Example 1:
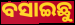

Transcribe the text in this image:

ବସାଇଛୁ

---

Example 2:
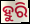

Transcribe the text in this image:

ହୁରି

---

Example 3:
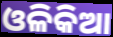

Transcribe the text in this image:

ଓଳିକିଆ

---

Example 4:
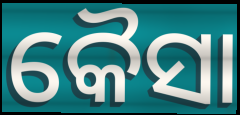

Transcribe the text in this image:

କୈସା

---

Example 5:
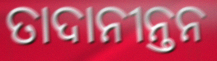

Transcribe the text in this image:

ତାଦାନୀନ୍ତନ